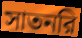
সাতনরি